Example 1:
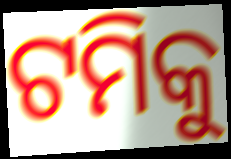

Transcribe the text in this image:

ଟମିକୁ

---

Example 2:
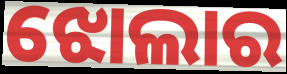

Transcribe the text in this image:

ଝୋଲାର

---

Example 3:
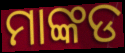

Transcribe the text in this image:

ମାଙ୍କଡ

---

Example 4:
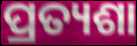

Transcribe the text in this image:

ପ୍ରତ୍ୟଶା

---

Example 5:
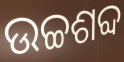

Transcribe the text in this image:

ଉଚ୍ଚଶବ୍ଦ